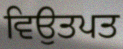
ਵਿਉਤਪਤ